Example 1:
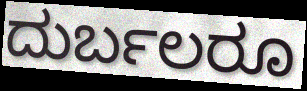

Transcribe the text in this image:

ದುರ್ಬಲರೂ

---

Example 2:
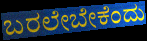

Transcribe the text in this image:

ಬರಲೇಬೇಕೆಂದು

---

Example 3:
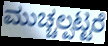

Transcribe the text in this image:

ಮುಚ್ಚಲ್ಪಟ್ಟರೆ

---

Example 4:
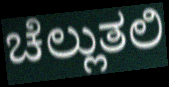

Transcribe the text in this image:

ಚೆಲ್ಲುತಲಿ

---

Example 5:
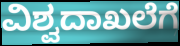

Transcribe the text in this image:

ವಿಶ್ವದಾಖಲೆಗೆ